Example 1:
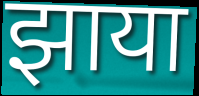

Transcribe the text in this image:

झाया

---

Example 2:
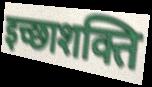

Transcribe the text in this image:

इच्छाशक्ति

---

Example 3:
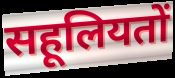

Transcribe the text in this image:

सहूलियतों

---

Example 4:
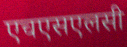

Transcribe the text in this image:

एचएसएलसी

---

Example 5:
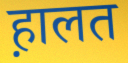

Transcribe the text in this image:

ह़ालत